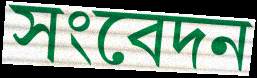
সংবেদন